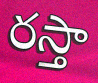
రస్తా